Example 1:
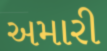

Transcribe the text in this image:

અમારી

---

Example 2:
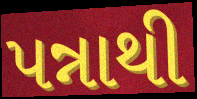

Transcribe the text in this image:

પન્નાથી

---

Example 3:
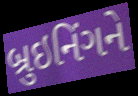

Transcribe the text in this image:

બ્રુઇનિંગને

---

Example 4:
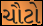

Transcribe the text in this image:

ચૌટો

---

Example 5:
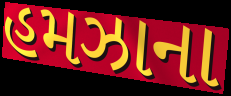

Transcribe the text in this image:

હમઝાના